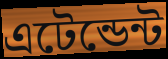
এটেন্ডেন্ট